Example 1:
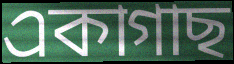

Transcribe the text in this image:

একাগাছ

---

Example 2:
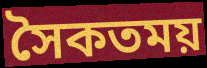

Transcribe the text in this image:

সৈকতময়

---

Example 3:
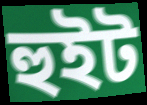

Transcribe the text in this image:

হুইট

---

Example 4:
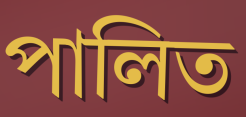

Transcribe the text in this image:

পালিত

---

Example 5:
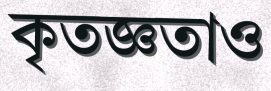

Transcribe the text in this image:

কৃতজ্ঞতাও